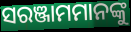
ସରଞ୍ଜାମମାନଙ୍କୁ